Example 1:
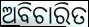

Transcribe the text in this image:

ଅବିଚାରିତ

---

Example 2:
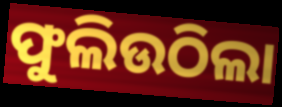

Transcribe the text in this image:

ଫୁଲିଉଠିଲା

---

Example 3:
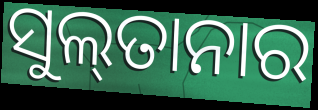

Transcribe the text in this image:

ସୁଲ୍‌ତାନାର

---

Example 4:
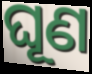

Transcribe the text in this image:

ଘୂଣ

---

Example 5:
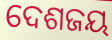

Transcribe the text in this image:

ଦେଶଜୟ